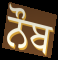
ਨੌਬ